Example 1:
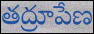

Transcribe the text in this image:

తద్రూపేణ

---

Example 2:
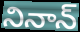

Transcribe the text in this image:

నినాన్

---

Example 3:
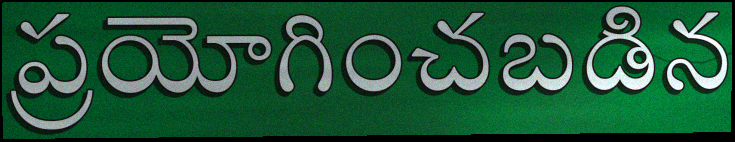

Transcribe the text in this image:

ప్రయోగించబడిన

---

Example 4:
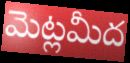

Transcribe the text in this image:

మెట్లమీద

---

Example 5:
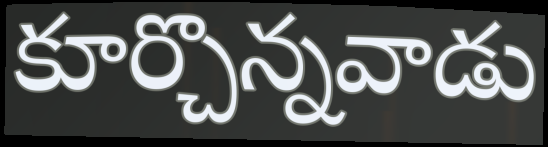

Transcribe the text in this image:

కూర్చొన్నవాడు